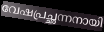
വേഷപ്രച്ഛന്നനായി